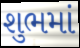
શુભમાં